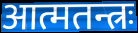
आत्मतन्त्रः